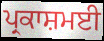
ਪ੍ਰਕਾਸ਼ਮਈ